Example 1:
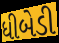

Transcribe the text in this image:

ધીબેડી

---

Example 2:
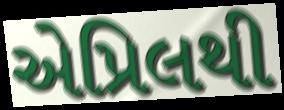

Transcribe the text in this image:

એપ્રિલથી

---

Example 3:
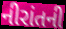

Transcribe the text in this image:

નીરાંતની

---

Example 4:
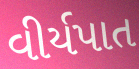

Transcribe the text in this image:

વીર્યપાત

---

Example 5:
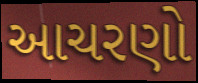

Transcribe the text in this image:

આચરણો